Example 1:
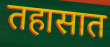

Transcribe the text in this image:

तहासात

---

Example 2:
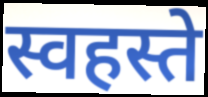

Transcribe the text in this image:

स्वहस्ते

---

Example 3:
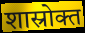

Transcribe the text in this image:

शास्रोक्त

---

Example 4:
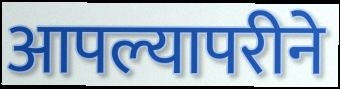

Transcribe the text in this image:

आपल्यापरीने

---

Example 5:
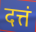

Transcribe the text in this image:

दत्तं